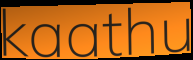
kaathu